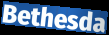
Bethesda